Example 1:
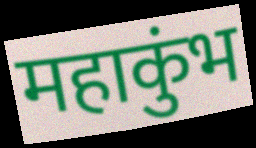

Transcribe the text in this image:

महाकुंभ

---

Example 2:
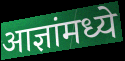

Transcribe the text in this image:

आज्ञांमध्ये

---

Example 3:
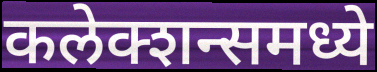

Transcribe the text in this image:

कलेक्शन्समध्ये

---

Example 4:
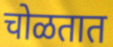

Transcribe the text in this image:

चोळतात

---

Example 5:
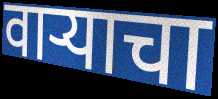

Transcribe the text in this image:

वाऱ्याचा